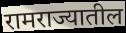
रामराज्यातील